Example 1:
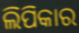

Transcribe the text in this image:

ଲିପିକାର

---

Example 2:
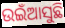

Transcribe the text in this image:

ଉଇଁଆସୁଛି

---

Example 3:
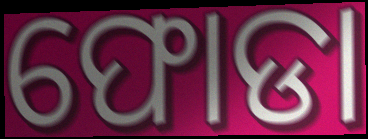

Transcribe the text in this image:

ଫୋଡା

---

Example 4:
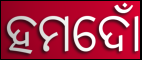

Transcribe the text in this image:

ହମଦୋଁ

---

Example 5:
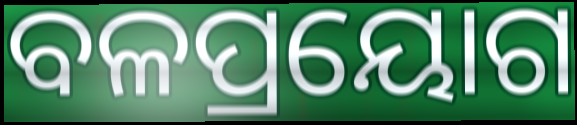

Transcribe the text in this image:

ବଳପ୍ରୟୋଗ